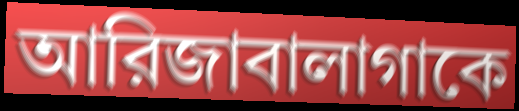
আরিজাবালাগাকে